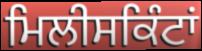
ਮਿਲੀਸਕਿੰਟਾਂ